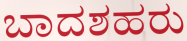
ಬಾದಶಹರು